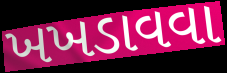
ખખડાવવા